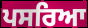
ਪਸਰਿਆ